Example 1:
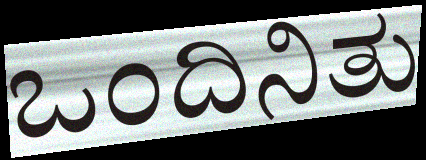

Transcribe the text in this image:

ಒಂದಿನಿತು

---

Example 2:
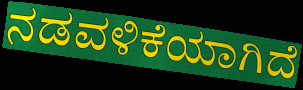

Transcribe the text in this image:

ನಡವಳಿಕೆಯಾಗಿದೆ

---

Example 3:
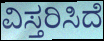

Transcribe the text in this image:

ವಿಸ್ತರಿಸಿದೆ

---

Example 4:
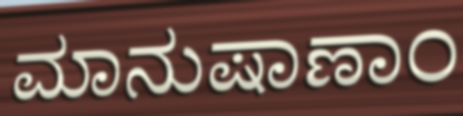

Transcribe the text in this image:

ಮಾನುಷಾಣಾಂ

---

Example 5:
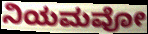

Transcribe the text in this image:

ನಿಯಮವೋ